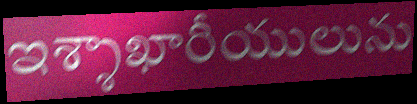
ఇశ్శాఖారీయులును